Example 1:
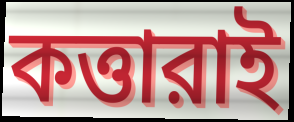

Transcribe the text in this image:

কত্তারাই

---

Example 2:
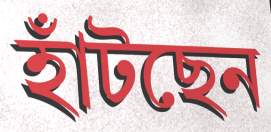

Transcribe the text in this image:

হাঁটছেন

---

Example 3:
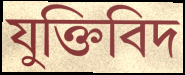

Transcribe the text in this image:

যুক্তিবিদ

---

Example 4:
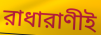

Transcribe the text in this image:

রাধারাণীই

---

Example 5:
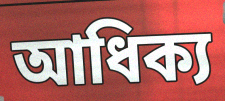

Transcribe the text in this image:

আধিক্য